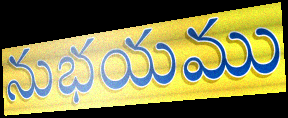
నుభయము